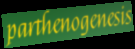
parthenogenesis